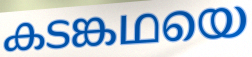
കടങ്കഥയെ